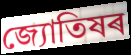
জ্যোতিষৰ